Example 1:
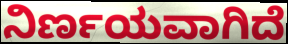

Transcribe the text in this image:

ನಿರ್ಣಯವಾಗಿದೆ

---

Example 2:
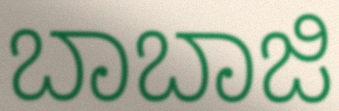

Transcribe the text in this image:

ಬಾಬಾಜಿ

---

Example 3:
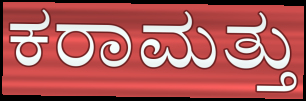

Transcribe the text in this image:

ಕರಾಮತ್ತು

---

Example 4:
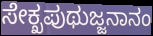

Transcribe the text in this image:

ಸೇಕ್ಖಪುಥುಜ್ಜನಾನಂ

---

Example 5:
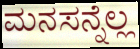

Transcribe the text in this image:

ಮನಸನ್ನೆಲ್ಲ